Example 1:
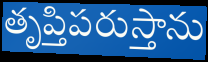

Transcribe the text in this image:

తృప్తిపరుస్తాను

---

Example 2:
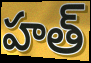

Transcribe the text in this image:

హత్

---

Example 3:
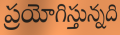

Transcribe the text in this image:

ప్రయోగిస్తున్నది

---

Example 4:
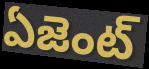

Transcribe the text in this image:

ఏజెంట్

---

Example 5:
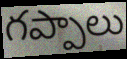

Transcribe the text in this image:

గప్పాలు